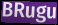
BRugu